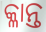
କ୍ଳାନ୍ତ